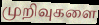
முறிவுகளை